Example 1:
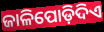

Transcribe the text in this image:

ଜାଳିପୋଡ଼ିଦିଏ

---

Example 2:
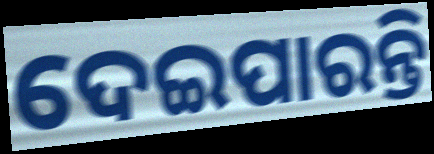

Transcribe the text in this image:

ଦେଇପାରନ୍ତି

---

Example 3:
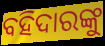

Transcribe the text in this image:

ବହିଦାରଙ୍କୁ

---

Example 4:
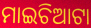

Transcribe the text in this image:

ମାଇଚିଆଟା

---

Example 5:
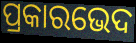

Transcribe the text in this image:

ପ୍ରକାରଭେଦ